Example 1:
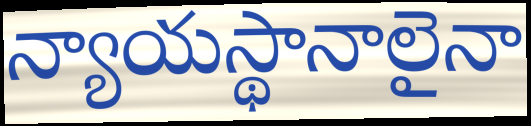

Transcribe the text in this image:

న్యాయస్థానాలైనా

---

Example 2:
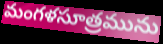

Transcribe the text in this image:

మంగళసూత్రమును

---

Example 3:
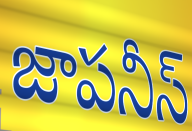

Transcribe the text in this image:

జాపనీస్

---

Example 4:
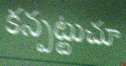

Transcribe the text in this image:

కన్పట్టుచూ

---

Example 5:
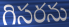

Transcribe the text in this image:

గిసరను